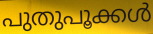
പുതുപൂക്കൾ